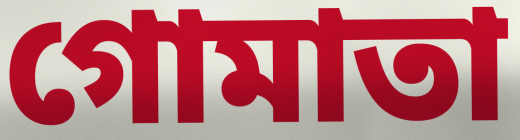
গোমাতা